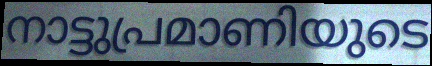
നാട്ടുപ്രമാണിയുടെ